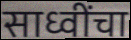
साध्वींचा